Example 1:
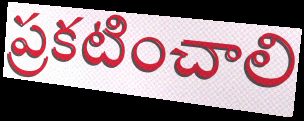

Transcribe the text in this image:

ప్రకటించాలి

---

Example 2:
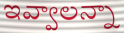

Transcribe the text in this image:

ఇవ్వాలన్నా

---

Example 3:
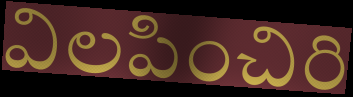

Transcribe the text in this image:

విలపించిరి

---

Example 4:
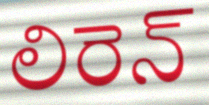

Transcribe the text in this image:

లిరెన్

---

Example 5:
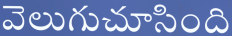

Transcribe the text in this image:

వెలుగుచూసింది